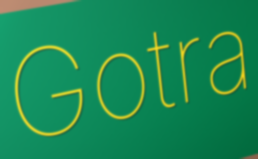
Gotra